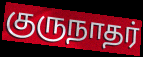
குருநாதர்